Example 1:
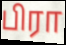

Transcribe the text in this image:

பிரா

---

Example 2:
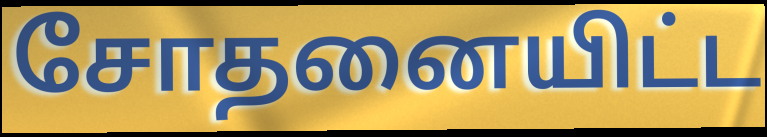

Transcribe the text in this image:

சோதனையிட்ட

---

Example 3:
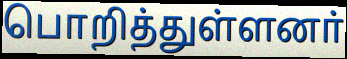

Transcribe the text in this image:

பொறித்துள்ளனர்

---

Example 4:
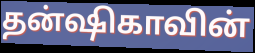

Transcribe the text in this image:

தன்ஷிகாவின்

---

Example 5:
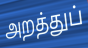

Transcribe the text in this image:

அறத்துப்